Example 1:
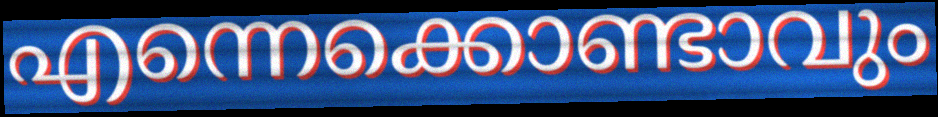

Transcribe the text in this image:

എന്നെക്കൊണ്ടാവും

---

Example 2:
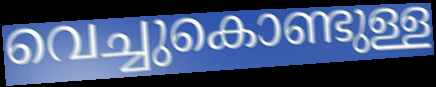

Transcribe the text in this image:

വെച്ചുകൊണ്ടുള്ള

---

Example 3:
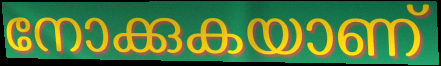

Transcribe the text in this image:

നോക്കുകയാണ്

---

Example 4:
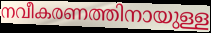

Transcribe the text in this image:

നവീകരണത്തിനായുള്ള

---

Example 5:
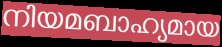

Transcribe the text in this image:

നിയമബാഹ്യമായ